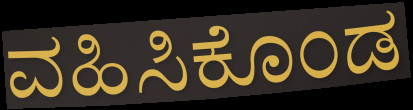
ವಹಿಸಿಕೊಂಡ